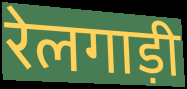
रेलगाड़ी